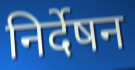
निर्देषन